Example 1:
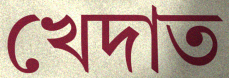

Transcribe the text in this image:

খেদাত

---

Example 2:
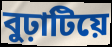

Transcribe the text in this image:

বুঢ়াটিয়ে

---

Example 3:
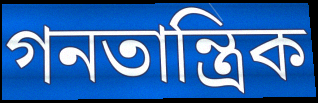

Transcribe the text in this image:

গনতান্ত্ৰিক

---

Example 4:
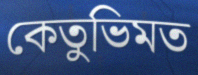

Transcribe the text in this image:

কেতুভিমত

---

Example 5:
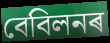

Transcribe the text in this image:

বেবিলনৰ